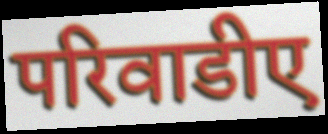
परिवाडीए